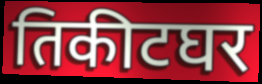
तिकीटघर